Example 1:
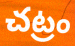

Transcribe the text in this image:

చట్రం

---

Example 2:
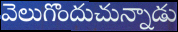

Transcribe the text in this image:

వెలుగొందుచున్నాడు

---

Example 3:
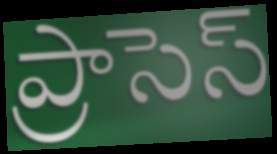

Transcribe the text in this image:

ప్రాసెస్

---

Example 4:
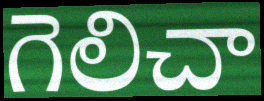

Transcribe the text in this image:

గెలిచా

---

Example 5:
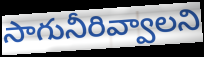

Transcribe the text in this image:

సాగునీరివ్వాలని